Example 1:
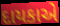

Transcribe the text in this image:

દાયકાએ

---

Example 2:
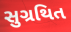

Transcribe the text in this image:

સુગ્રથિત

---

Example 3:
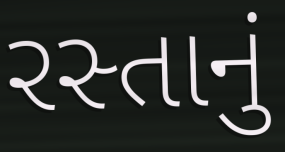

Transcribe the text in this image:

રસ્તાનું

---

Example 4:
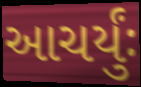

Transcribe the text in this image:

આચર્યુંઃ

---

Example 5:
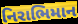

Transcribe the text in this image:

નિરાભિમાન